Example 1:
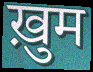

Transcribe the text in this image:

ख़ुम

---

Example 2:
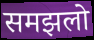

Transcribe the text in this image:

समझलो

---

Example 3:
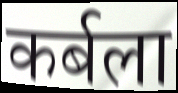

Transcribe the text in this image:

कर्बला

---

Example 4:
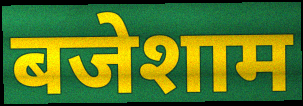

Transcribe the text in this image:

बजेशाम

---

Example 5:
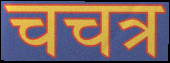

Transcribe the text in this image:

चचत्र